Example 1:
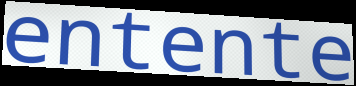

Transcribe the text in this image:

entente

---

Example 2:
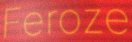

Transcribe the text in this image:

Feroze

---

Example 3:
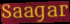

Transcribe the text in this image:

Saagar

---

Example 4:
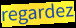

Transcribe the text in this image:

regardez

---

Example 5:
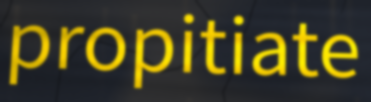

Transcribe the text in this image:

propitiate